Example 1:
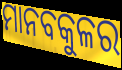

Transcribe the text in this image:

ମାନବକୁଳର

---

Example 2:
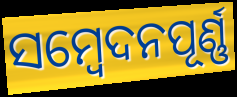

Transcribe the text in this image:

ସମ୍ବେଦନପୂର୍ଣ୍ଣ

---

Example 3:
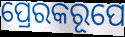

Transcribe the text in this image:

ପ୍ରେରକରୂପେ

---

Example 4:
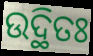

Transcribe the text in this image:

ଉଦ୍ଥିତଃ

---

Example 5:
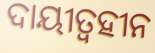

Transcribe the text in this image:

ଦାୟୀତ୍ୱହୀନ